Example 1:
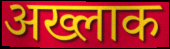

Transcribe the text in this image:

अख्लाक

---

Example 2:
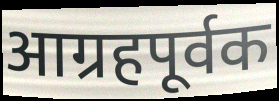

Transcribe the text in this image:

आग्रहपूर्वक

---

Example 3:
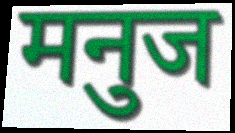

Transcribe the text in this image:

मनुज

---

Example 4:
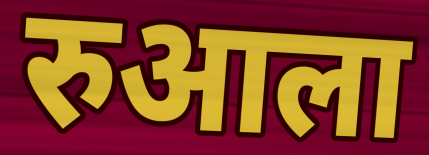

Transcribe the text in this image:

रुआला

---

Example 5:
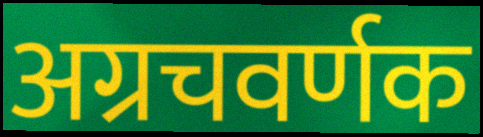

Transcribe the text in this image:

अग्रचवर्णक